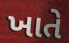
ખાતે